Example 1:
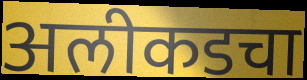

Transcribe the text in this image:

अलीकडचा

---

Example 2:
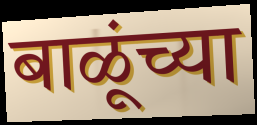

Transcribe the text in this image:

बाळूंच्या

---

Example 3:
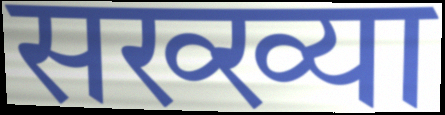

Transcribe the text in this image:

सख्ख्या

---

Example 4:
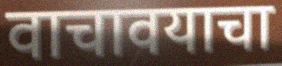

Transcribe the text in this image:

वाचावयाचा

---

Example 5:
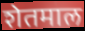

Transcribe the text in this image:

शेतमाल